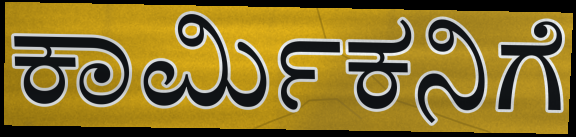
ಕಾರ್ಮಿಕನಿಗೆ